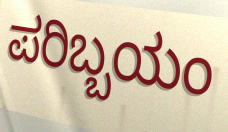
ಪರಿಬ್ಬಯಂ